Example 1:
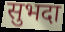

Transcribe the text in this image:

सुभदा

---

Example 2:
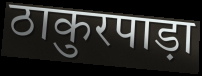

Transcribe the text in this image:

ठाकुरपाड़ा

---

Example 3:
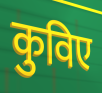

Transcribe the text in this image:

कुविए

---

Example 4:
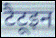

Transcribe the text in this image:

टैटूइन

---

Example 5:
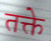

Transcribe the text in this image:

तक्ते